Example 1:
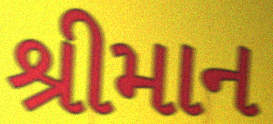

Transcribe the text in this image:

શ્રીમાન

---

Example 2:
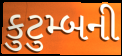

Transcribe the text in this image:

કુટુમ્બની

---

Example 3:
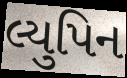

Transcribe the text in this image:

લ્યુપિન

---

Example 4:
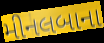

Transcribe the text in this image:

મીનલબાના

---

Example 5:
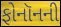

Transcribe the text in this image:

ફોનૉનની